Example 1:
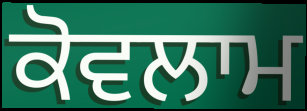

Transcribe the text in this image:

ਕੋਵਲਾਮ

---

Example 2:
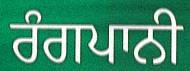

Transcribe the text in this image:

ਰੰਗਪਾਨੀ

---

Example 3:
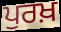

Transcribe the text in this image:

ਪੁਰਖ਼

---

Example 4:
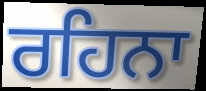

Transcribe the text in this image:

ਰਹਿਨਾ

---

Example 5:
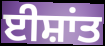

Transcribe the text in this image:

ਈਸ਼ਾਂਤ